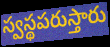
స్వస్థపరుస్తారు